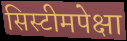
सिस्टीमपेक्षा